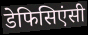
डेफिसिएंसी